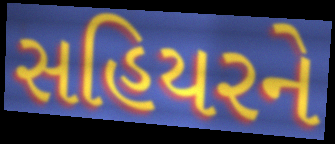
સહિયરને